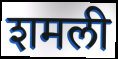
शमली